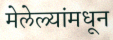
मेलेल्यांमधून